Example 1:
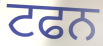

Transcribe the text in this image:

ਟਫਨ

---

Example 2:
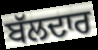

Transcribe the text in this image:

ਬੱਲਦਾਰ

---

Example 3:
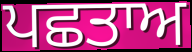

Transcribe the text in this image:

ਪਛਤਾਅ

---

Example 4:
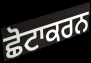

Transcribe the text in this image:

ਛੋਟਾਕਰਨ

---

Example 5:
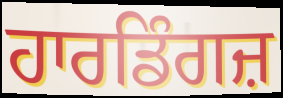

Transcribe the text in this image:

ਹਾਰਡਿੰਗਜ਼